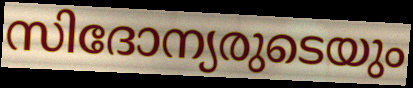
സിദോന്യരുടെയും